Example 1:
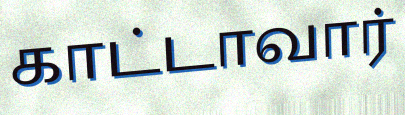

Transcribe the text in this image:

காட்டாவார்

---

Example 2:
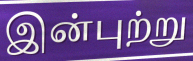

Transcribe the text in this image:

இன்புற்று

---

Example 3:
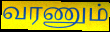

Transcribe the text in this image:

வரணும்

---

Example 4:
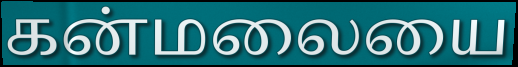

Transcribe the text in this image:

கன்மலையை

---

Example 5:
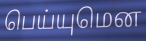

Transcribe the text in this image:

பெய்யுமென